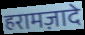
हरामज़ादे